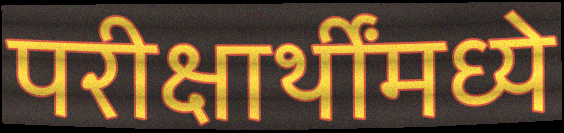
परीक्षार्थींमध्ये